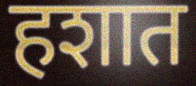
हशात